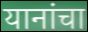
यानांचा